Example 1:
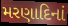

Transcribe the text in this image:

મરણાદિનાં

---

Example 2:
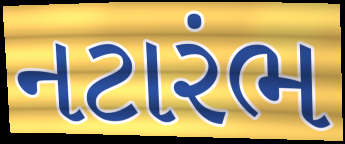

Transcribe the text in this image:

નટારંભ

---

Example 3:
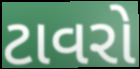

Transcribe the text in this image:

ટાવરો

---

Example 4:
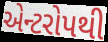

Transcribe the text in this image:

એન્ટરોપથી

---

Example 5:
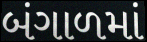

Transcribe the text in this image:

બંગાળમાં